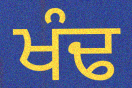
ਖੰਢ